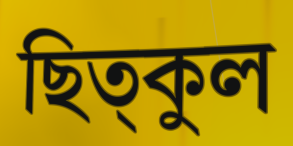
ছিত্কুল